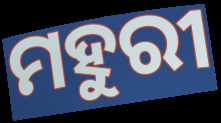
ମହୁରୀ